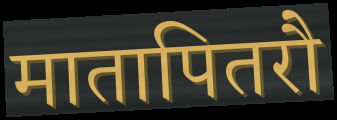
मातापितरौ